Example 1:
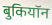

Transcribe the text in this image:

बुकियॉन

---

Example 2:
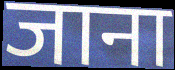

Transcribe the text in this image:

जाना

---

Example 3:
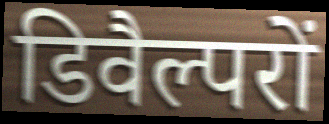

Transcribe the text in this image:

डिवैल्परों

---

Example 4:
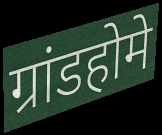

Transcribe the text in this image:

ग्रांडहोमे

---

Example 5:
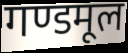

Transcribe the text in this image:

गण्डमूल